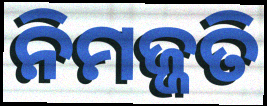
ନିମଜ୍ଜତି